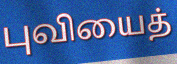
புவியைத்